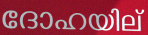
ദോഹയില്